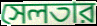
সেলতার